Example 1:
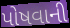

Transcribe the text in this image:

પોષવાની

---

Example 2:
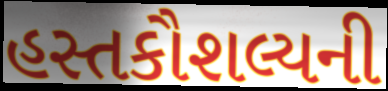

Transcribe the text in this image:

હસ્તકૌશલ્યની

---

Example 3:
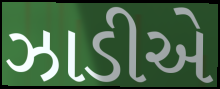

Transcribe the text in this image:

ઝાડીએ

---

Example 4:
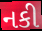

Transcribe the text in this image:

નકી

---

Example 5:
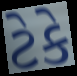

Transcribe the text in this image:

ટેકે